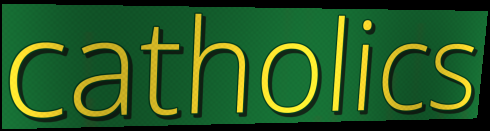
catholics